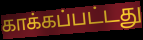
காக்கப்பட்டது